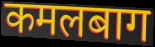
कमलबाग